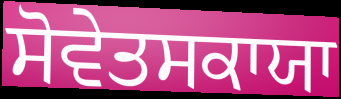
ਸੋਵੇਤਸਕਾਯਾ